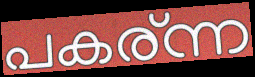
പകര്ന്ന